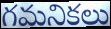
గమనికలు